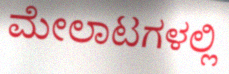
ಮೇಲಾಟಗಳಲ್ಲಿ